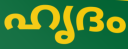
ഹൃദം